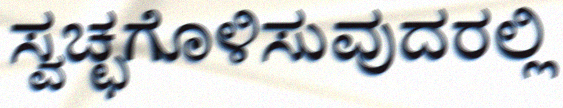
ಸ್ವಚ್ಛಗೊಳಿಸುವುದರಲ್ಲಿ